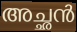
അച്ഛൻ